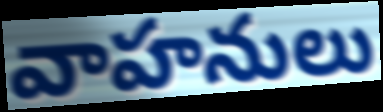
వాహనులు